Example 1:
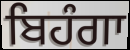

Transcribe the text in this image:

ਬਿਹੰਗਾ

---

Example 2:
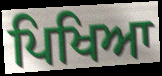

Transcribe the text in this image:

ਪਿਖਿਆ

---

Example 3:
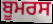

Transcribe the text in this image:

ਬੂਮਰਸ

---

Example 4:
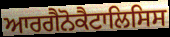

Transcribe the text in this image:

ਆਰਗੈਨੋਕੈਟਾਲਿਸਿਸ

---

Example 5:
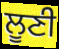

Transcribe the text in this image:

ਲੂਣੀ